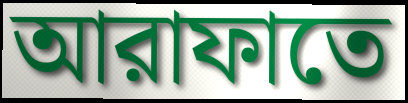
আরাফাতে